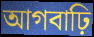
আগবাঢ়ি